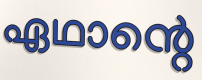
ഏഥാന്റെ